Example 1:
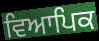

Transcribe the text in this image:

ਵਿਆਪਿਕ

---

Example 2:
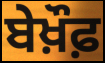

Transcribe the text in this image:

ਬੇਖ਼ੌਫ਼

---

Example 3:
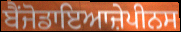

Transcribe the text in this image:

ਬੈਂਜੋਡਾਇਆਜ਼ੇਪੀਨਸ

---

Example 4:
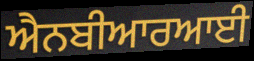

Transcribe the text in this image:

ਐਨਬੀਆਰਆਈ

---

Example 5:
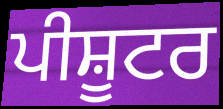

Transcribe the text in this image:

ਪੀਸ਼ੂਟਰ